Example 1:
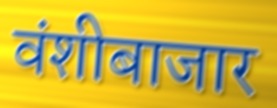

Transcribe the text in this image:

वंशीबाजार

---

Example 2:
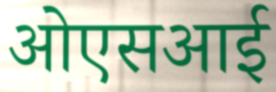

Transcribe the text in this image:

ओएसआई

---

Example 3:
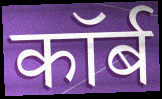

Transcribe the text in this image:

कॉर्ब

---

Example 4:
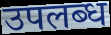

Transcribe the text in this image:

उपलब्‍ध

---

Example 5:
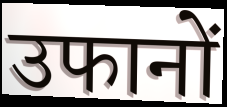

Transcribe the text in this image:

उफानों